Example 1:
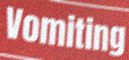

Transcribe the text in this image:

Vomiting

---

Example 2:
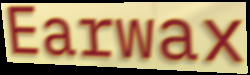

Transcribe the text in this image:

Earwax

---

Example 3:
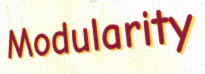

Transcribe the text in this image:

Modularity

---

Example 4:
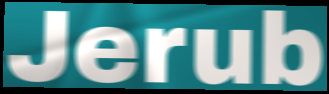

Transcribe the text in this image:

Jerub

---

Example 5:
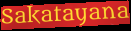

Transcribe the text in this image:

Sakatayana